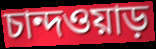
চান্দওয়াড়